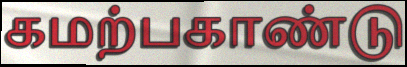
கமற்பகாண்டு